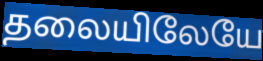
தலையிலேயே